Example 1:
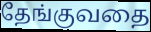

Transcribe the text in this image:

தேங்குவதை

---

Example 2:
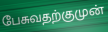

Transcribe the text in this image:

பேசுவதற்குமுன்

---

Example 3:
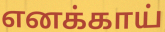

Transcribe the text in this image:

எனக்காய்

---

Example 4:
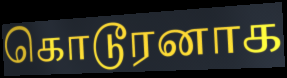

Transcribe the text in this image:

கொடூரனாக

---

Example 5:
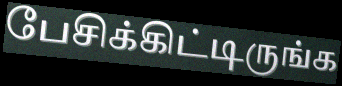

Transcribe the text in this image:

பேசிக்கிட்டிருங்க